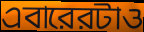
এবারেরটাও